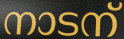
നാടന്